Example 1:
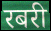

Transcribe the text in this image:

रबरी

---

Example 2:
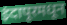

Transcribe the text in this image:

इंदापूरमधून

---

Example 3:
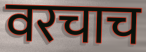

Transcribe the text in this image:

वरचाच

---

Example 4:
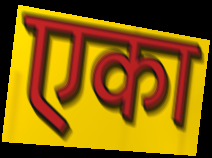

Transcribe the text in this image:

एका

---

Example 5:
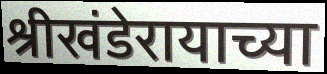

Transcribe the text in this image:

श्रीखंडेरायाच्या